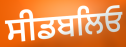
ਸੀਡਬਲਿਓ